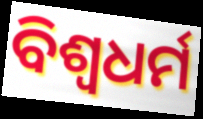
ବିଶ୍ବଧର୍ମ